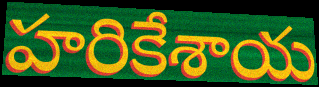
హరికేశాయ